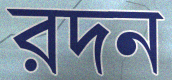
রদন